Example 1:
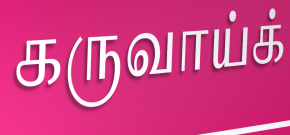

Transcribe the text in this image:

கருவாய்க்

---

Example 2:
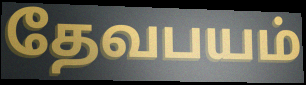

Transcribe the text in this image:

தேவபயம்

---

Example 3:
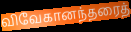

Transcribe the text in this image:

விவேகானந்தரைத்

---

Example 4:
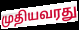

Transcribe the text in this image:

முதியவரது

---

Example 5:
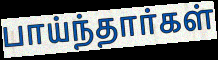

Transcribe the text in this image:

பாய்ந்தார்கள்